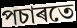
পচাৰতে